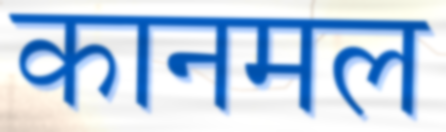
कानमल